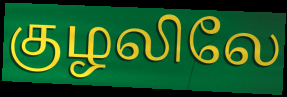
குழலிலே